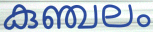
കുഞ്ചലം